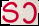
ടാ